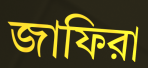
জাফিরা